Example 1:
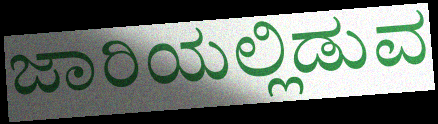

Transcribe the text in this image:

ಜಾರಿಯಲ್ಲಿಡುವ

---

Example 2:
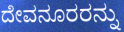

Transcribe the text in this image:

ದೇವನೂರರನ್ನು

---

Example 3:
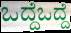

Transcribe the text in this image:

ಒದ್ದೆಒದ್ದೆ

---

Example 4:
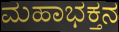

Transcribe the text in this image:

ಮಹಾಭಕ್ತನ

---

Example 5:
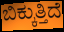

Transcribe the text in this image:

ಬಿಕ್ಕುತ್ತಿದೆ